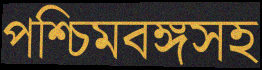
পশ্চিমবঙ্গসহ